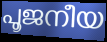
പൂജനീയ